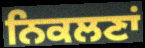
ਨਿਕਲਣਾਂ